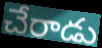
చేరాడు